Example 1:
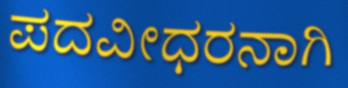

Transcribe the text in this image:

ಪದವೀಧರನಾಗಿ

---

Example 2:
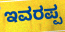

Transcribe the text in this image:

ಇವರಪ್ಪ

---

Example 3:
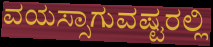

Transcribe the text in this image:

ವಯಸ್ಸಾಗುವಷ್ಟರಲ್ಲಿ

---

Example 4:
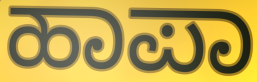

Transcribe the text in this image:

ಹಾಪಾ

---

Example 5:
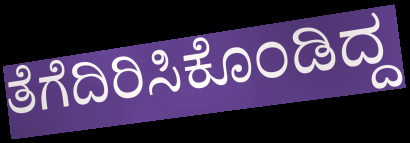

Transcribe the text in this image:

ತೆಗೆದಿರಿಸಿಕೊಂಡಿದ್ದ